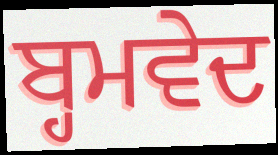
ਬ੍ਹਮਵੇਦ